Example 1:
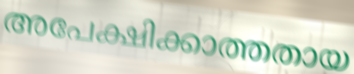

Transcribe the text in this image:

അപേക്ഷിക്കാത്തതായ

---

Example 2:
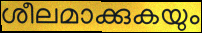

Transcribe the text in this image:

ശീലമാക്കുകയും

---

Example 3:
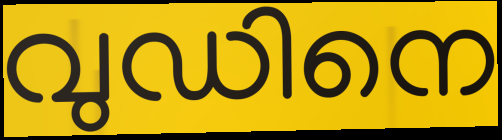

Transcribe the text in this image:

വുഡിനെ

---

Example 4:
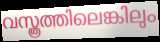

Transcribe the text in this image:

വസ്ത്രത്തിലെങ്കിലും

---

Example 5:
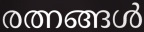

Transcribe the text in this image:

രത്നങ്ങൾ